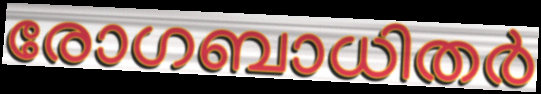
രോഗബാധിതർ